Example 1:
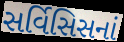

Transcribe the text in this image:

સર્વિસિસનાં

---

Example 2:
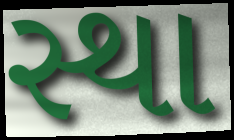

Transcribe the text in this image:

સ્થા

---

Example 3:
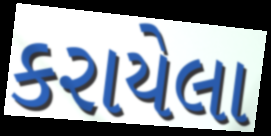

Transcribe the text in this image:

કરાયેલા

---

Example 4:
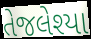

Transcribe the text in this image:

તેજલેશ્યા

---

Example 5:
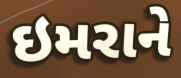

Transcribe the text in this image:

ઇમરાને